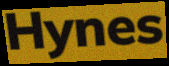
Hynes